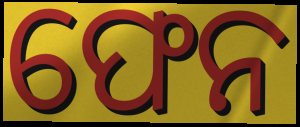
ଫେନ